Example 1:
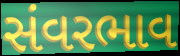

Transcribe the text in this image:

સંવરભાવ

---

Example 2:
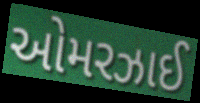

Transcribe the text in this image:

ઓમરઝાઈ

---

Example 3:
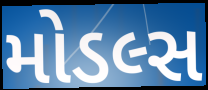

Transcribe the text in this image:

મોડલ્સ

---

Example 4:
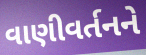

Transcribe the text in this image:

વાણીવર્તનને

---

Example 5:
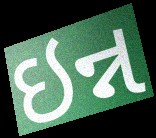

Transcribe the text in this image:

ઇન્ન